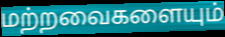
மற்றவைகளையும்